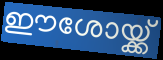
ഈശോയ്ക്ക്